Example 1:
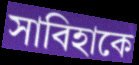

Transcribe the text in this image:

সাবিহাকে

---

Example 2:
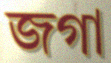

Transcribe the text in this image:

জগা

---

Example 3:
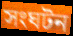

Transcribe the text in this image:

সংঘটন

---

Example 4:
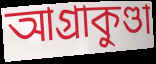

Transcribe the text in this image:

আগ্রাকুণ্ডা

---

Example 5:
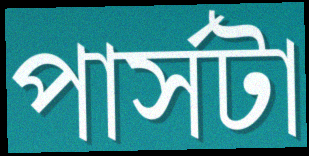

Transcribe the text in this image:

পার্সটা